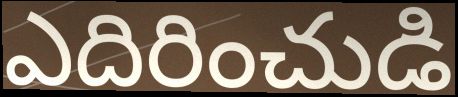
ఎదిరించుడి